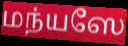
மந்யஸே